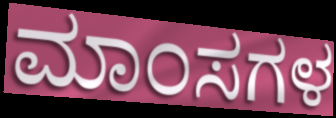
ಮಾಂಸಗಳ